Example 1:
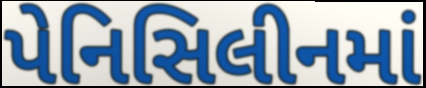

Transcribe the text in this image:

પેનિસિલીનમાં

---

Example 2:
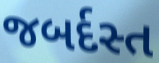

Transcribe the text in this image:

જબર્દસ્ત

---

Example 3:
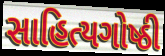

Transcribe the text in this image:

સાહિત્યગોષ્ઠી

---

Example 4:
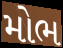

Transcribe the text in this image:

મોભ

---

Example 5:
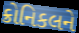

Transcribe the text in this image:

ક્રોનિકલને